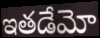
ఇతడేమో